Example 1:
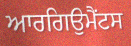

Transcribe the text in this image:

ਆਰਗਿਉਮੈਂਟਸ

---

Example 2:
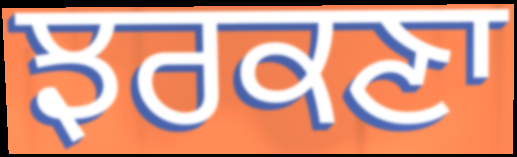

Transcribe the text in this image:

ਝਰਕਣਾ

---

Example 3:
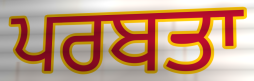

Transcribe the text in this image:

ਪਰਬਤਾ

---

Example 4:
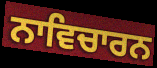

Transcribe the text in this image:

ਨਾਵਿਚਾਰਨ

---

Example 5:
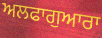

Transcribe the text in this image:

ਅਲਫਾਗੁਆਰਾ